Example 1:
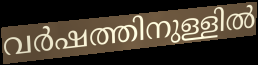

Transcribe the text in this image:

വർഷത്തിനുള്ളിൽ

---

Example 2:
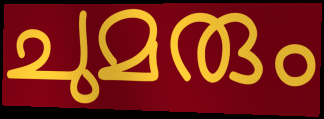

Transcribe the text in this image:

ചുമരും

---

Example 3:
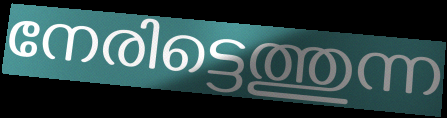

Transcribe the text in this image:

നേരിട്ടെത്തുന്ന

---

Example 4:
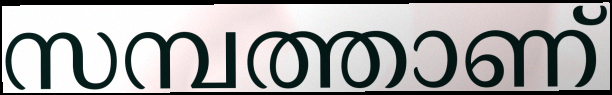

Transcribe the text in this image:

സമ്പത്താണ്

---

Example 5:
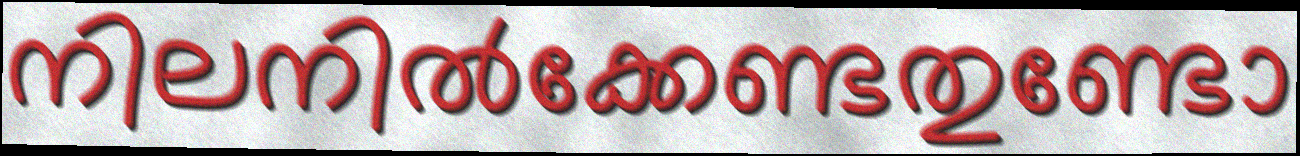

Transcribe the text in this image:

നിലനിൽക്കേണ്ടതുണ്ടോ